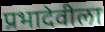
प्रभादेवीला